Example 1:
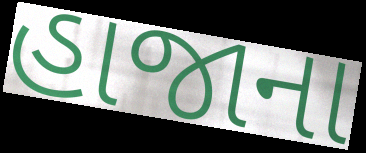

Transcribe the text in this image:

હાજાના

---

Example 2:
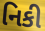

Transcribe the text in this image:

નિકી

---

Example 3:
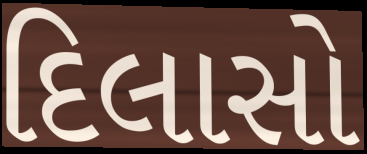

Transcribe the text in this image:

દિલાસો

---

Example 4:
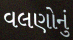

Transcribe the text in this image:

વલણોનું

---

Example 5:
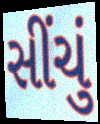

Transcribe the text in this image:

સીંચું